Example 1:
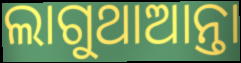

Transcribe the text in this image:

ଲାଗୁଥାଆନ୍ତା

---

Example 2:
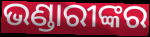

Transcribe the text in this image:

ଭଣ୍ଡାରୀଙ୍କର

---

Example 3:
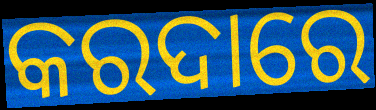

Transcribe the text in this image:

କରଦାରେ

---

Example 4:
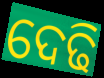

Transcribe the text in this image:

ଦେଢି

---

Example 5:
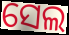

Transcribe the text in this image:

ସେଲ